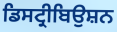
ਡਿਸਟ੍ਰੀਬਿਉਸ਼ਨ